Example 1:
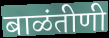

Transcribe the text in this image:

बाळंतीणी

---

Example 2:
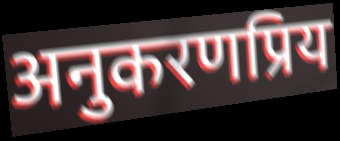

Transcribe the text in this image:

अनुकरणप्रिय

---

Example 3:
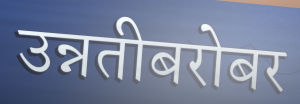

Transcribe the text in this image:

उन्नतीबरोबर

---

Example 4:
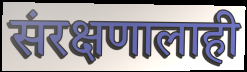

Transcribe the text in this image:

संरक्षणालाही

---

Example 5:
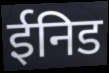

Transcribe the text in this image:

ईनिड